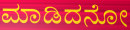
ಮಾಡಿದನೋ